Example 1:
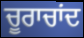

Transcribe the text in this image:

ਚੂਰਾਚਾਂਦ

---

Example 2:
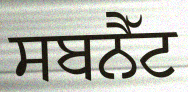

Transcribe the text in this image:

ਸਬਨੈੱਟ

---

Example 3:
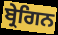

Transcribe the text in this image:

ਬ੍ਰੇਗਿਨ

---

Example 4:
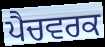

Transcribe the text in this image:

ਪੈਚਵਰਕ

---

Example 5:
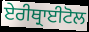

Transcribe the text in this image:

ਏਰੀਥ੍ਰਾਈਟੋਲ